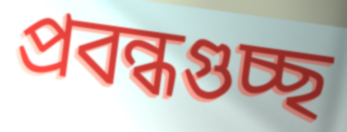
প্রবন্ধগুচ্ছ